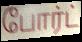
போர்ட்